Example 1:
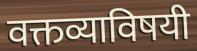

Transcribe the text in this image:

वक्तव्याविषयी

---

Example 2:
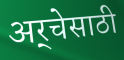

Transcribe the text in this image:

अर्चेसाठी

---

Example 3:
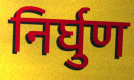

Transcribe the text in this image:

निर्घुण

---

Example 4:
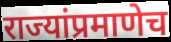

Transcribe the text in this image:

राज्यांप्रमाणेच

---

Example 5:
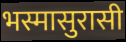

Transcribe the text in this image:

भस्मासुरासी